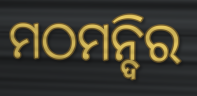
ମଠମନ୍ଦିର